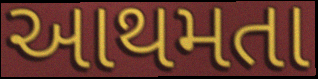
આથમતા